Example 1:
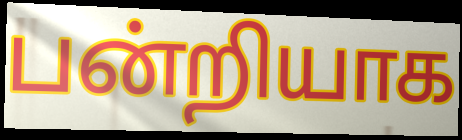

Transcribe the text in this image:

பன்றியாக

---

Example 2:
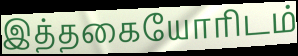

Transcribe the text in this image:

இத்தகையோரிடம்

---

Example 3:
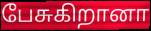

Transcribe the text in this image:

பேசுகிறானா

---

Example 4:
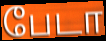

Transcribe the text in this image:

பேடா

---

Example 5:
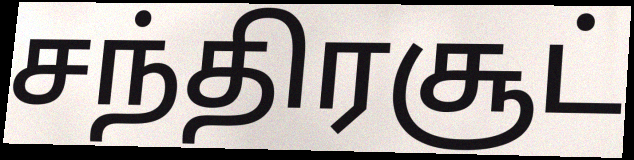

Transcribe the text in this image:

சந்திரசூட்